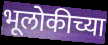
भूलोकीच्या